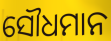
ସୌଧମାନ